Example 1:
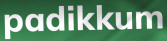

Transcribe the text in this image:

padikkum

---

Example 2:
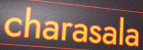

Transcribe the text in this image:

charasala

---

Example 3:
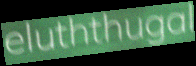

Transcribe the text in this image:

eluththugal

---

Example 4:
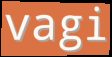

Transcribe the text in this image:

vagi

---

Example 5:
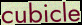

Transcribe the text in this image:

cubicle